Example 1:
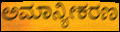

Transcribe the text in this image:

ಅಮಾನ್ಯೀಕರಣ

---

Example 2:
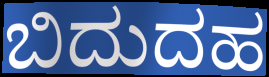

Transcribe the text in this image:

ಬಿದುದಹ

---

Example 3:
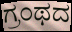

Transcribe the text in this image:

ಗ್ರಂಥದ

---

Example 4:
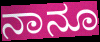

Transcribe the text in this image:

ನಾನೂ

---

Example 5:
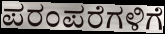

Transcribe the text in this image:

ಪರಂಪರೆಗಳಿಗೆ